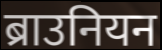
ब्राउनियन